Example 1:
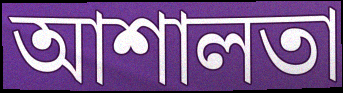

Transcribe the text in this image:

আশালতা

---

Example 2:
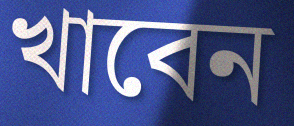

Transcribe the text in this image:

খাবেন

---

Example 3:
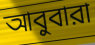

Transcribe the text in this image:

আবুবারা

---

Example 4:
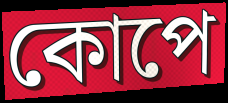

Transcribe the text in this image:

কোপে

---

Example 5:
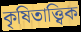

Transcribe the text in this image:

কৃষিতাত্ত্বিক